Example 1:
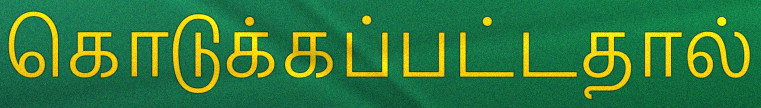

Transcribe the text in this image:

கொடுக்கப்பட்டதால்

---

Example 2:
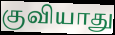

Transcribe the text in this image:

குவியாது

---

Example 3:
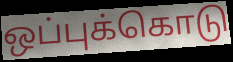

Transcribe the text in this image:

ஒப்புக்கொடு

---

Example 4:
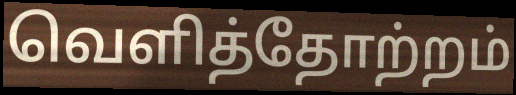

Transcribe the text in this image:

வெளித்தோற்றம்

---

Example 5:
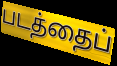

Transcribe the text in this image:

படத்தைப்